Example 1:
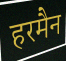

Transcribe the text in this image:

हरमैन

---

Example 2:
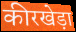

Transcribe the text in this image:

कीरखेड़ा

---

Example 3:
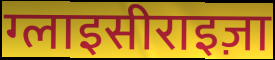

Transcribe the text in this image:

ग्लाइसीराइज़ा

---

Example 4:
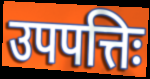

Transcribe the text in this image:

उपपत्तिः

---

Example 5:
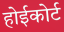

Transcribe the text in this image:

होईकोर्ट